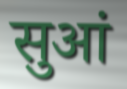
सुआं